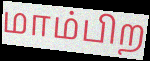
மாம்பிற